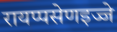
रायप्पसेणइज्जे